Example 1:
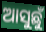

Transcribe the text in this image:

ଆସୁଛୁଁ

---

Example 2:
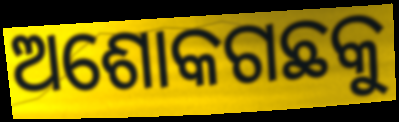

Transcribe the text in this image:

ଅଶୋକଗଛକୁ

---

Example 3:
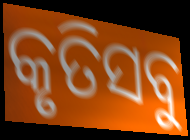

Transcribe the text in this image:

କୃତିସବୁ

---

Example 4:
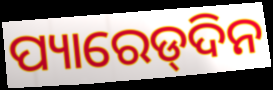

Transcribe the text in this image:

ପ୍ୟାରେଡ୍‌ଦିନ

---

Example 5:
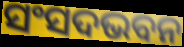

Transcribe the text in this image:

ସଂସଦଭବନ